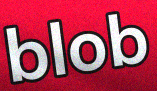
blob